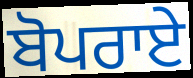
ਬੋਪਰਾਏ